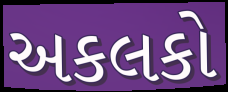
અકલકો